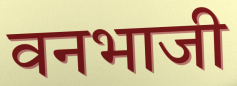
वनभाजी